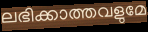
ലഭിക്കാത്തവളുമേ